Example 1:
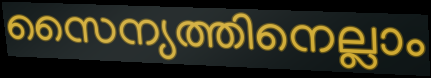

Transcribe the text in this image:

സൈന്യത്തിനെല്ലാം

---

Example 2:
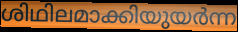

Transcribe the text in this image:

ശിഥിലമാക്കിയുയർന്ന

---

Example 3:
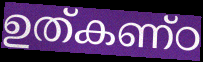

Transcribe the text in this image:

ഉത്കണ്ഠ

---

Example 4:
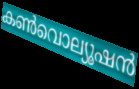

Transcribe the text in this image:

കൺവൊല്യൂഷൻ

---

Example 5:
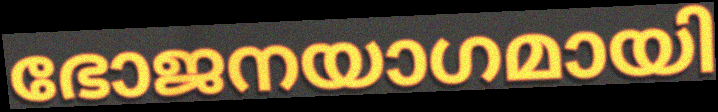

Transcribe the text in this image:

ഭോജനയാഗമായി